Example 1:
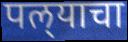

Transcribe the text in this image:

पल्याचा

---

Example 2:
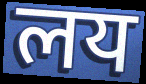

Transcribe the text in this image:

लय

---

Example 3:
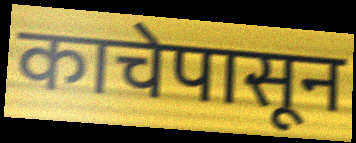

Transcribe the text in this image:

काचेपासून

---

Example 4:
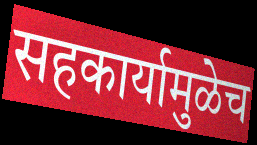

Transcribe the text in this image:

सहकार्यामुळेच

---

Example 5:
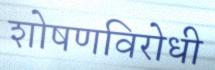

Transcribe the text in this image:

शोषणविरोधी